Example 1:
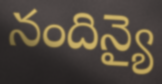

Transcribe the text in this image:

నందిన్యై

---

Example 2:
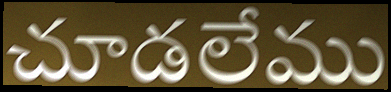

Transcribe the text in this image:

చూడలేము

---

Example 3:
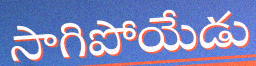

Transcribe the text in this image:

సాగిపోయేడు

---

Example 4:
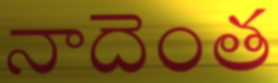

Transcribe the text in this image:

నాదెంత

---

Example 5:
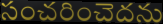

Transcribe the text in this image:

సంచరించెదను